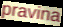
pravina